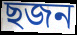
ছজন